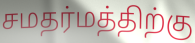
சமதர்மத்திற்கு